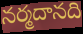
నర్మదానది